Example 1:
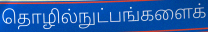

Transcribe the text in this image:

தொழில்நுட்பங்களைக்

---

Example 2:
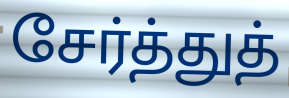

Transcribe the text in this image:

சேர்த்துத்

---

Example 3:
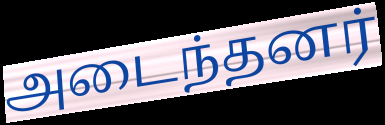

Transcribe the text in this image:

அடைந்தனர்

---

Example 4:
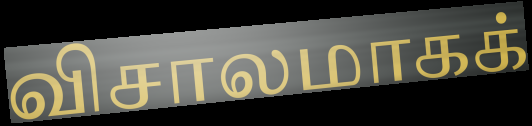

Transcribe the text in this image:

விசாலமாகக்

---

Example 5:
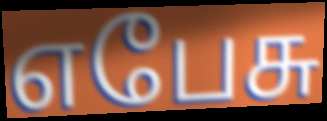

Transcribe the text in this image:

எபேசு